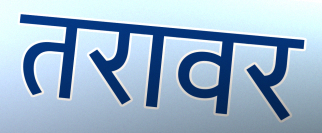
तरावर